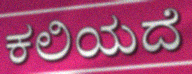
ಕಲಿಯದೆ